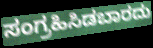
ಸಂಗ್ರಹಿಸಿಡಬಾರದು